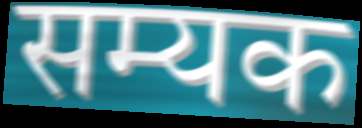
सम्यक